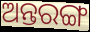
ଅନ୍ତରଙ୍ଗ